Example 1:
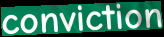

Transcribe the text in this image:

conviction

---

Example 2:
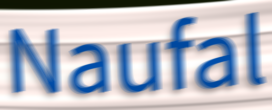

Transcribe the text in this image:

Naufal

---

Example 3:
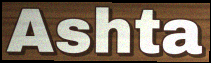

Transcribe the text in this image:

Ashta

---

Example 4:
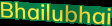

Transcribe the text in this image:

Bhailubhai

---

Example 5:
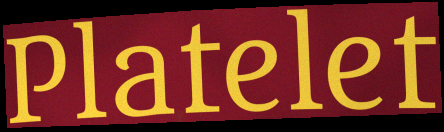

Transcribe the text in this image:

Platelet